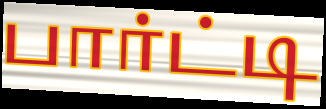
பார்ட்டி